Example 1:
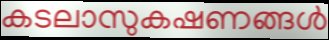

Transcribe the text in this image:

കടലാസുകഷണങ്ങൾ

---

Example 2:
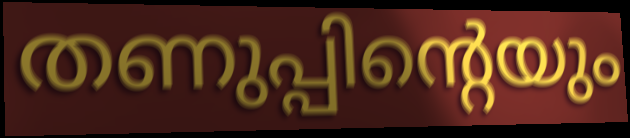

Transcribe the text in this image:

തണുപ്പിന്റെയും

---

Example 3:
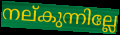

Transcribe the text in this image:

നല്കുന്നില്ലേ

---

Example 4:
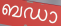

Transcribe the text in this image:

ബഡാ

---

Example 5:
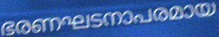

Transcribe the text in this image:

ഭരണഘടനാപരമായ